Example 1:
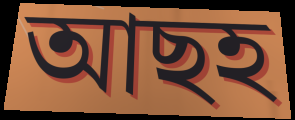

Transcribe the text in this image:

আছহ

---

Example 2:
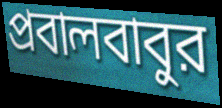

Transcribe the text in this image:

প্রবালবাবুর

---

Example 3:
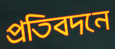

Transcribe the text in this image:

প্রতিবদনে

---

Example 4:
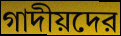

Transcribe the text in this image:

গাদীয়দের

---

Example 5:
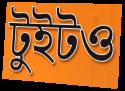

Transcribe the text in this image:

টুইটও